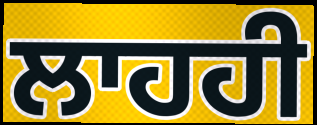
ਲਾਹਹੀ